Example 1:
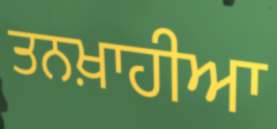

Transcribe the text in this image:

ਤਨਖ਼ਾਹੀਆ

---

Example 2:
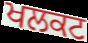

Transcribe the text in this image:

ਖਲਕਟ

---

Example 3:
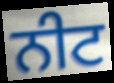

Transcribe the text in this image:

ਨੀਟ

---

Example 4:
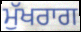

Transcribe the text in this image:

ਮੁੱਖਰਾਗ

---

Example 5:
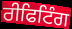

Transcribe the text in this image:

ਰੀਫਿਟਿੰਗ